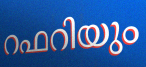
റഫറിയും